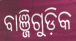
ବାଞ୍ଜିଗୁଡ଼ିକ